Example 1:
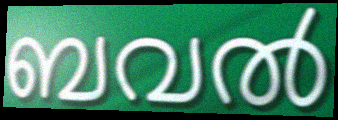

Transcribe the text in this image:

ബവൽ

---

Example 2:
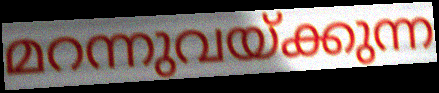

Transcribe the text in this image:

മറന്നുവയ്ക്കുന്ന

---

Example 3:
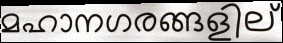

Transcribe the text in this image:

മഹാനഗരങ്ങളില്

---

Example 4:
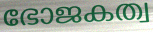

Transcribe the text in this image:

ഭോജകത്വ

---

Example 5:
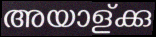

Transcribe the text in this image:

അയാള്ക്കു